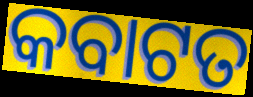
କବାଟତ